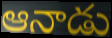
ఆనాడు